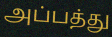
அப்பத்து